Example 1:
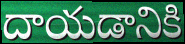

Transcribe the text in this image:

దాయడానికి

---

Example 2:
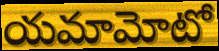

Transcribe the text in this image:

యమామోటో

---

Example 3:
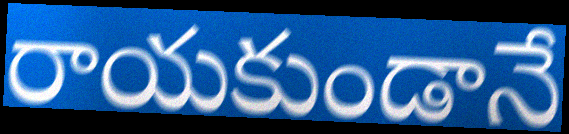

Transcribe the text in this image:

రాయకుండానే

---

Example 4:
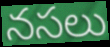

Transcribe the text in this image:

నసలు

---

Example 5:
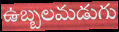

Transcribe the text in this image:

ఉబ్బలమడుగు